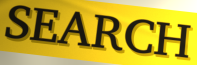
SEARCH